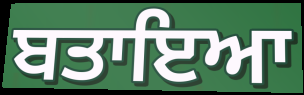
ਬਤਾਇਆ